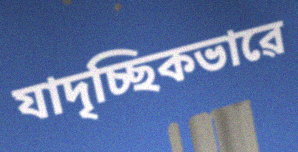
যাদৃচ্ছিকভাৱে